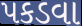
પકડવા